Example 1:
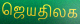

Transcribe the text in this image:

ஜெயதிலக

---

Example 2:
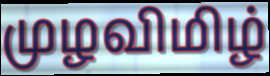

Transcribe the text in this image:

முழவிமிழ்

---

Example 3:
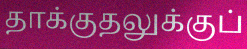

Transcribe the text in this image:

தாக்குதலுக்குப்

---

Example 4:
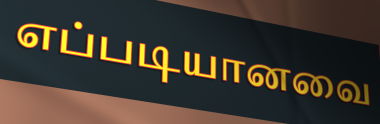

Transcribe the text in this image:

எப்படியானவை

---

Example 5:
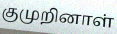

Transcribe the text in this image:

குமுறினாள்